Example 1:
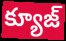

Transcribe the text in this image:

క్యూజ్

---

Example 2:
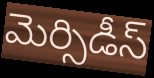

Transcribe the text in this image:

మెర్సిడీస్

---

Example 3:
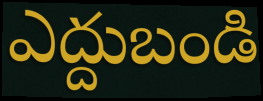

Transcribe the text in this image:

ఎద్దుబండి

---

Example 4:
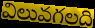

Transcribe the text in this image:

విలువగలది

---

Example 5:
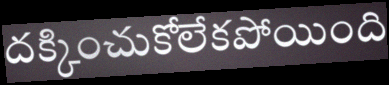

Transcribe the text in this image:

దక్కించుకోలేకపోయింది